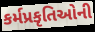
કર્મપ્રકૃતિઓની